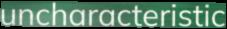
uncharacteristic